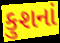
કુશનાં